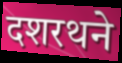
दशरथने